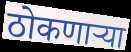
ठोकणाऱ्या